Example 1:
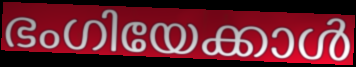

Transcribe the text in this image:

ഭംഗിയേക്കാൾ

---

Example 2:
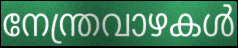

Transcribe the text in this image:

നേന്ത്രവാഴകൾ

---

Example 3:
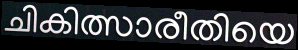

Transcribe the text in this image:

ചികിത്സാരീതിയെ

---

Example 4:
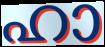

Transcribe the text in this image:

ഹാ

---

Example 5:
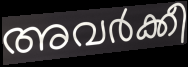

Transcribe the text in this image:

അവർക്കീ